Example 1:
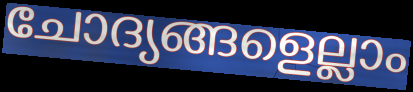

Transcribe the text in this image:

ചോദ്യങ്ങളെല്ലാം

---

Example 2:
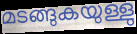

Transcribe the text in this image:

മടങ്ങുകയുള്ളു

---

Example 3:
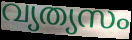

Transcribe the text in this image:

വ്യത്യസം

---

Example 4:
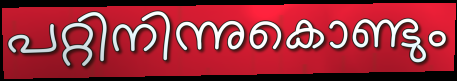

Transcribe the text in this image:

പറ്റിനിന്നുകൊണ്ടും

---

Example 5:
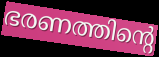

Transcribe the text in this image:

ഭരണത്തിന്റെ